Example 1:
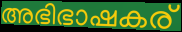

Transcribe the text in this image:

അഭിഭാഷകര്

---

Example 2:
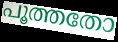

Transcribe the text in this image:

പൂത്തതോ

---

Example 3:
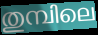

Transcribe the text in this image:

തുമ്പിലെ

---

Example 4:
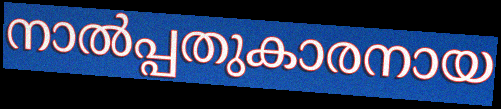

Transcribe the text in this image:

നാൽപ്പതുകാരനായ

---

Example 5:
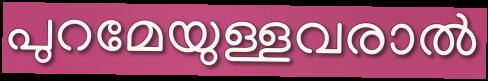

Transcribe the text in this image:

പുറമേയുള്ളവരാൽ